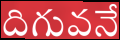
దిగువనే